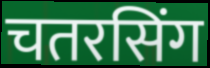
चतरसिंग